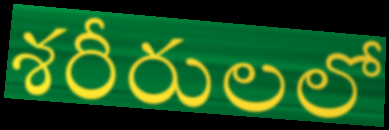
శరీరులలో